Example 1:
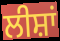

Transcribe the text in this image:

ਲੀਸ਼ਾਂ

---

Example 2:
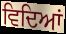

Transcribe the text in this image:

ਵਿਦਿਆਂ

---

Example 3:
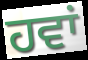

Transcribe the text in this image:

ਹਵਾਂ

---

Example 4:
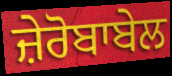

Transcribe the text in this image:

ਜ਼ੇਰੋਬਾਬੇਲ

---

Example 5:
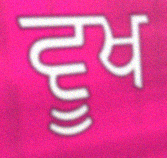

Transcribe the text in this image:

ਵੂਖ